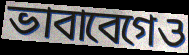
ভাবাবেগেও